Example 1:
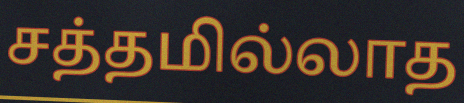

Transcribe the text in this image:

சத்தமில்லாத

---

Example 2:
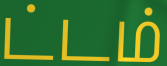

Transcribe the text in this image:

ட்டம்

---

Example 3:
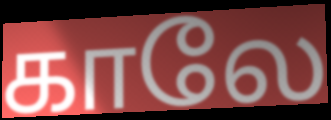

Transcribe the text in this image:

காலே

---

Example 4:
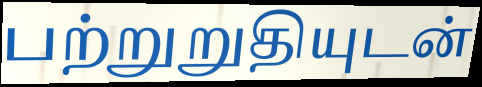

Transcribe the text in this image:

பற்றுறுதியுடன்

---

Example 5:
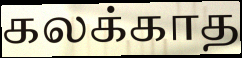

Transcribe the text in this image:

கலக்காத